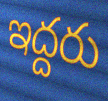
ఇద్దరు